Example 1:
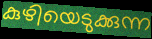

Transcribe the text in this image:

കുഴിയെടുക്കുന്ന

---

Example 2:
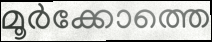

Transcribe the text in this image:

മൂർക്കോത്തെ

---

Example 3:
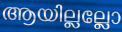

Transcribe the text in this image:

ആയില്ലല്ലോ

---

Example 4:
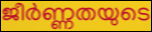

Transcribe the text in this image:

ജീർണ്ണതയുടെ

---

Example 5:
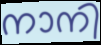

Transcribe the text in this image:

നാനി